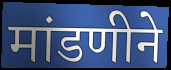
मांडणीने